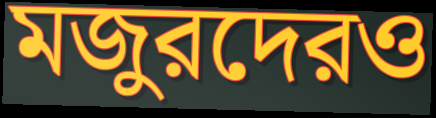
মজুরদেরও